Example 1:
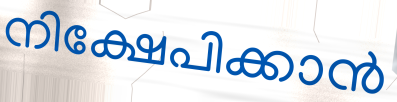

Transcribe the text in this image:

നിക്ഷേപിക്കാൻ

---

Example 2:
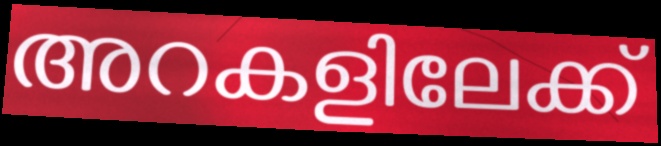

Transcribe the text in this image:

അറകളിലേക്ക്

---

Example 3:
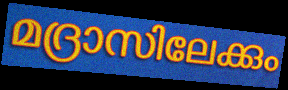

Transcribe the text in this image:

മദ്രാസിലേക്കും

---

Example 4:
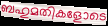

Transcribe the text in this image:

ബഹുമതികളോടെ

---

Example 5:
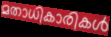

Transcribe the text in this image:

മതാധികാരികൾ